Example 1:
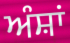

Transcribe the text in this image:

ਅੰਸ਼ਾਂ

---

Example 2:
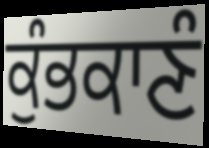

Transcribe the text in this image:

ਕੁੰਭਕਾਣੰ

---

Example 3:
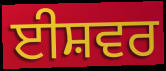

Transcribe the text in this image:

ਈਸ਼ਵਰ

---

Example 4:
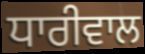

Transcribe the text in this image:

ਧਾਰੀਵਾਲ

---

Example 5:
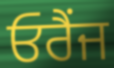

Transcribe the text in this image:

ਓਰੈਂਜ